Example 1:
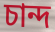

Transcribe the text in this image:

চান্দ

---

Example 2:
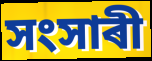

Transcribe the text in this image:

সংসাৰী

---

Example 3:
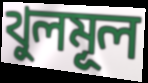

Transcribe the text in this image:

থুলমূল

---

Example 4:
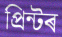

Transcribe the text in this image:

প্ৰিন্টৰ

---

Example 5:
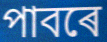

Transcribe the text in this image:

পাবৰে